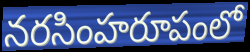
నరసింహరూపంలో